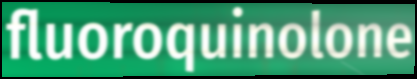
fluoroquinolone